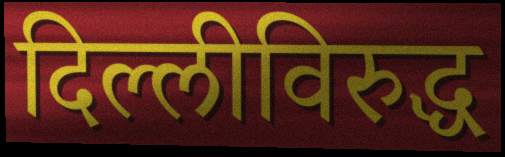
दिल्लीविरुद्ध